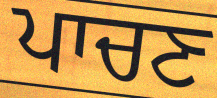
ਪਾਚਣ